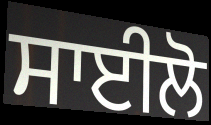
ਸਾਈਲੋ